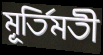
মূর্তিমতী